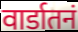
वार्डातनं